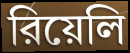
রিয়েলি